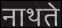
नाथते